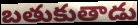
బతుకుతాడు